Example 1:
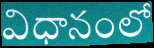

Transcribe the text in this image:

విధానంలో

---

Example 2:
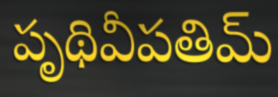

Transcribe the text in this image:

పృథివీపతిమ్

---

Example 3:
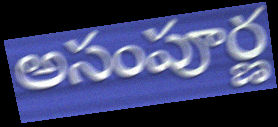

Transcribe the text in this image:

అసంపూర్ణ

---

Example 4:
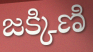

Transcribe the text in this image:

జక్కిణి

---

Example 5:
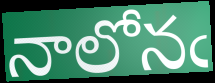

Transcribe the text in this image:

నాలోనఁ